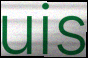
uis